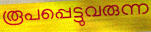
രൂപപ്പെട്ടുവരുന്ന